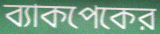
ব্যাকপেকের